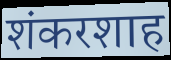
शंकरशाह